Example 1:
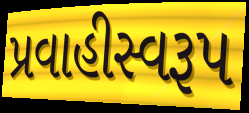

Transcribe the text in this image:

પ્રવાહીસ્વરૂપ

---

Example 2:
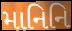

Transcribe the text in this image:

માનિનિ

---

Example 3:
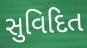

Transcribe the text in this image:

સુવિદિત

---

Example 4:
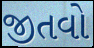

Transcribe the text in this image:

જીતવો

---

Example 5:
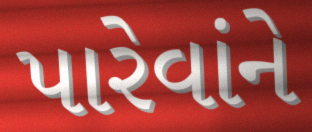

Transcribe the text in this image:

પારેવાંને